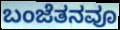
ಬಂಜೆತನವೂ